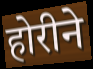
होरीने